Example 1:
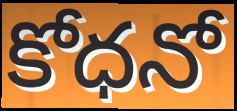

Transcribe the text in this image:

కోధనో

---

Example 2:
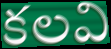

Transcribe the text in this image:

కలవి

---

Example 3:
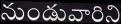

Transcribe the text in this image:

నుండువారిని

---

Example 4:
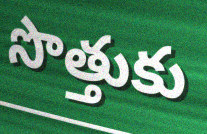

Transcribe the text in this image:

సొత్తుకు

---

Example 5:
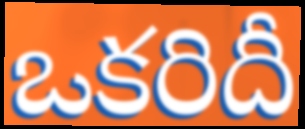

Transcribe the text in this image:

ఒకరిదీ